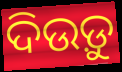
ଦିଉଡ଼ୁ